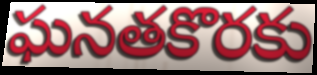
ఘనతకొరకు